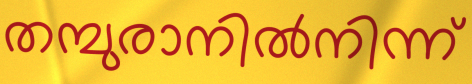
തമ്പുരാനിൽനിന്ന്